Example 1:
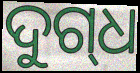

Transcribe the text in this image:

ଦୁଗ୍‌ଧ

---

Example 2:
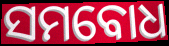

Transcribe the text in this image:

ସମବୋଧ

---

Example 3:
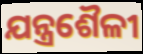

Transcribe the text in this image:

ଯନ୍ତ୍ରଶୈଳୀ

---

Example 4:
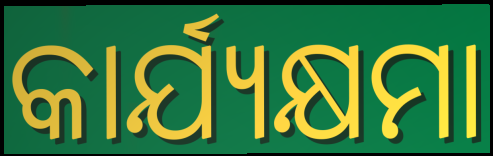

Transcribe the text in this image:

କାର୍ଯ୍ୟକ୍ଷମା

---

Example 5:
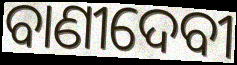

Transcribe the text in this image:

ବାଣୀଦେବୀ